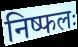
निष्फलः